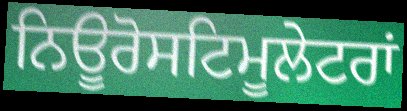
ਨਿਊਰੋਸਟਿਮੂਲੇਟਰਾਂ